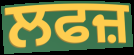
ਲਫਜ਼